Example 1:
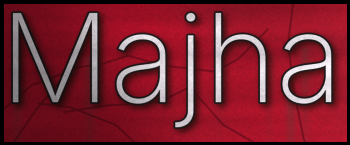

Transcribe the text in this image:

Majha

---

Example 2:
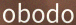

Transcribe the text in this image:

obodo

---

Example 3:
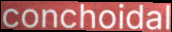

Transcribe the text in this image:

conchoidal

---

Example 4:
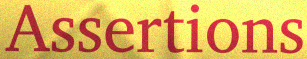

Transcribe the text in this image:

Assertions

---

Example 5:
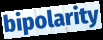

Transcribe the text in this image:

bipolarity